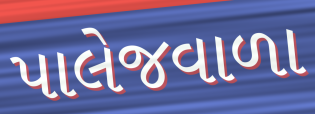
પાલેજવાળા